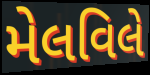
મેલવિલે